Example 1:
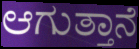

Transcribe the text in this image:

ಆಗುತ್ತಾನೆ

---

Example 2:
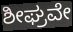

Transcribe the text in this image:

ಶೀಘ್ರವೇ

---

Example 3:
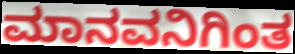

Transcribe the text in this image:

ಮಾನವನಿಗಿಂತ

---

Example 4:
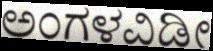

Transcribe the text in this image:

ಅಂಗಳವಿಡೀ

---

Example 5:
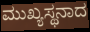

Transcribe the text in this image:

ಮುಖ್ಯಸ್ಥನಾದ